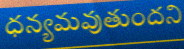
ధన్యమవుతుందని